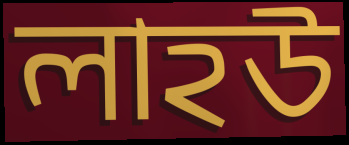
লাহউ